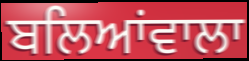
ਬਲਿਆਂਵਾਲਾ